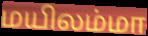
மயிலம்மா